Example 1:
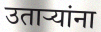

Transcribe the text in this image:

उताऱ्यांना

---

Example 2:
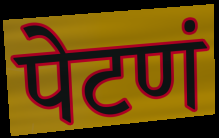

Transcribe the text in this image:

पेटणं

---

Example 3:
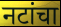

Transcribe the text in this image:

नटांचा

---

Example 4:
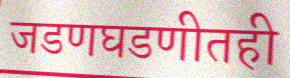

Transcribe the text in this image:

जडणघडणीतही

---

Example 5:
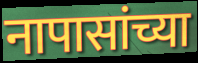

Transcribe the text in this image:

नापासांच्या